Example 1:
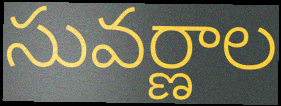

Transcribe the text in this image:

సువర్ణాల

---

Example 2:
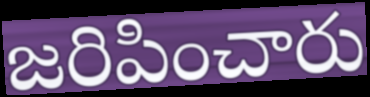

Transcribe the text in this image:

జరిపించారు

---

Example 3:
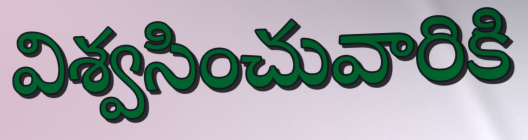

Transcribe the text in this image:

విశ్వసించువారికి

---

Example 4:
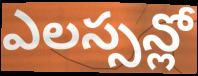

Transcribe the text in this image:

ఎలస్సన్లో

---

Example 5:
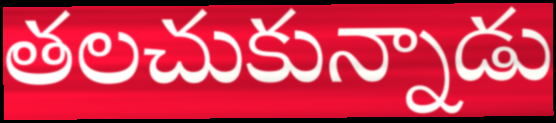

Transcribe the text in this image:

తలచుకున్నాడు